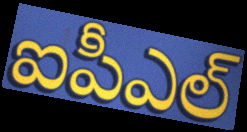
ఐపీఎల్